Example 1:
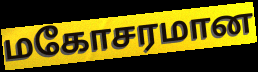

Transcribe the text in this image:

மகோசரமான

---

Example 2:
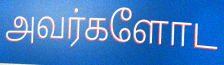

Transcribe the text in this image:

அவர்களோட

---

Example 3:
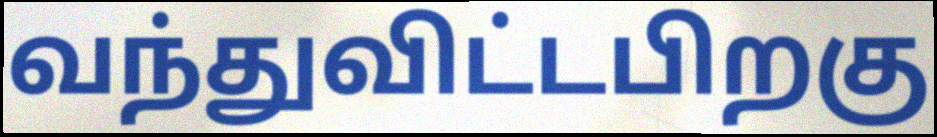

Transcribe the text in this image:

வந்துவிட்டபிறகு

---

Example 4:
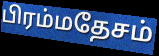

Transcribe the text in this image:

பிரம்மதேசம்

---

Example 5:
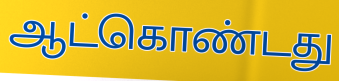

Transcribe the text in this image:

ஆட்கொண்டது